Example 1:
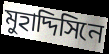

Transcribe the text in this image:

মুহাদ্দিসিনে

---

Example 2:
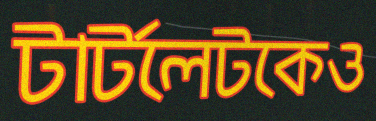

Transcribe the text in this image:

টার্টলেটকেও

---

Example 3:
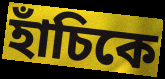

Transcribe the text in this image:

হাঁচিকে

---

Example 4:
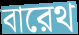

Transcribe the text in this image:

বারেথ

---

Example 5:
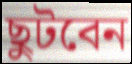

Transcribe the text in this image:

ছুটবেন